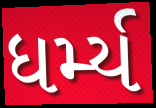
ધર્મ્ય